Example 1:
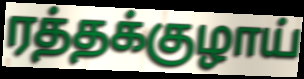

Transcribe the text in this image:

ரத்தக்குழாய்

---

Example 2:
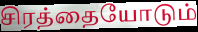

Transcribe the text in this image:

சிரத்தையோடும்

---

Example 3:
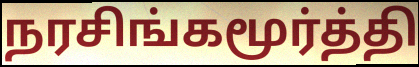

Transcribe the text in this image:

நரசிங்கமூர்த்தி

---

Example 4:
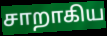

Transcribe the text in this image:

சாறாகிய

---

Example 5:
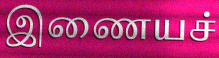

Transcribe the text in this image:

இணையச்